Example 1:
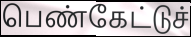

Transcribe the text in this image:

பெண்கேட்டுச்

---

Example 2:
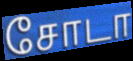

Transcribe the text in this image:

சோடா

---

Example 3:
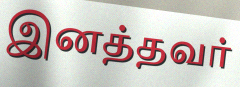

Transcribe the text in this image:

இனத்தவர்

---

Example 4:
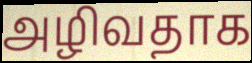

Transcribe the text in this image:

அழிவதாக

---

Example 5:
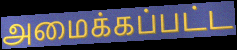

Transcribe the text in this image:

அமைக்கப்பட்ட